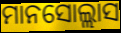
ମାନସୋଲ୍ଲାସ